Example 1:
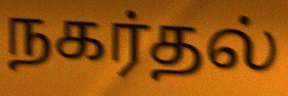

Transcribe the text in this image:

நகர்தல்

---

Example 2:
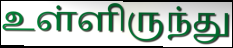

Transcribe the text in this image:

உள்ளிருந்து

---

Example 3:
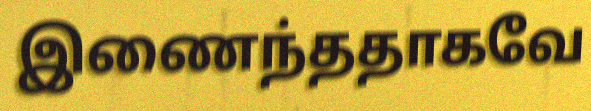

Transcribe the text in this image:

இணைந்ததாகவே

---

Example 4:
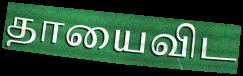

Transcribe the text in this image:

தாயைவிட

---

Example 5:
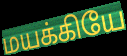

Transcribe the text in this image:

மயக்கியே